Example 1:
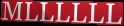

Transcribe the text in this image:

MLLLLLL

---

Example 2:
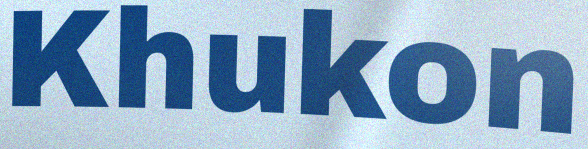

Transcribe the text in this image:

Khukon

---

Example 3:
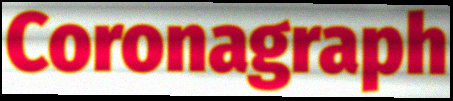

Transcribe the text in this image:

Coronagraph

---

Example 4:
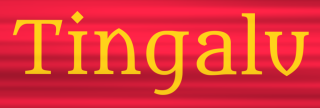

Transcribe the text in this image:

Tingalu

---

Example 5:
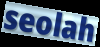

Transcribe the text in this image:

seolah